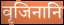
वृजिनानि